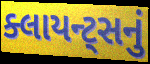
ક્લાયન્ટ્સનું